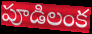
పూడిలంక